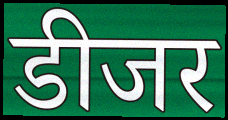
डीजर